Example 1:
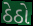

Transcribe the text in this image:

ઠેઠો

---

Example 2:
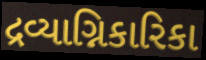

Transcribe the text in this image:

દ્રવ્યાગ્નિકારિકા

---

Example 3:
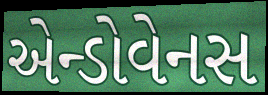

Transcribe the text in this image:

એન્ડોવેનસ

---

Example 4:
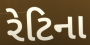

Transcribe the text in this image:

રેટિના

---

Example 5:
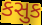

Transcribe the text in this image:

કસુક